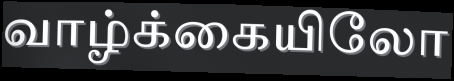
வாழ்க்கையிலோ